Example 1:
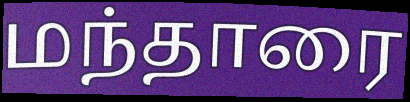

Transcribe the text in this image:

மந்தாரை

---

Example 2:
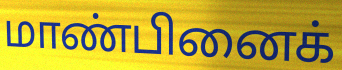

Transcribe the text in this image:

மாண்பினைக்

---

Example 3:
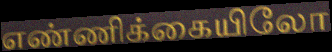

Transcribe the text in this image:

எண்ணிக்கையிலோ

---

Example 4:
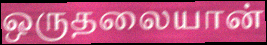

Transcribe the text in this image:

ஒருதலையான்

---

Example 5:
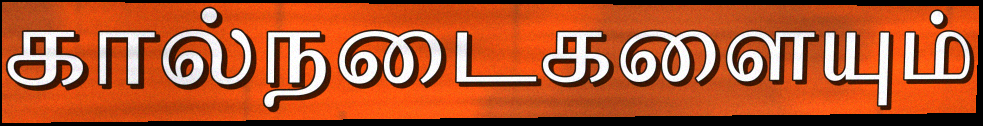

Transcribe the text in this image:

கால்நடைகளையும்